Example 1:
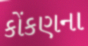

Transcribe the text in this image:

કોંકણના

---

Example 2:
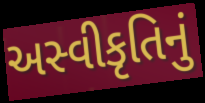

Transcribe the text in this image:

અસ્વીકૃતિનું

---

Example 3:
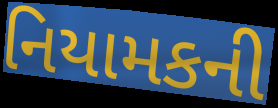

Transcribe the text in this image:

નિયામકની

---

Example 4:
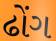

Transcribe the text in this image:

ઢોંગ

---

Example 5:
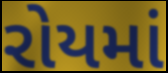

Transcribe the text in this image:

રોયમાં